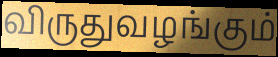
விருதுவழங்கும்